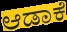
ಆಡಾಕೆ